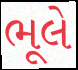
ભૂલે